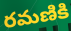
రమణికి